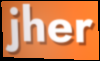
jher